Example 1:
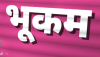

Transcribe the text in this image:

भूकम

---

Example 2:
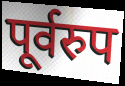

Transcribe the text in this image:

पूर्वरुप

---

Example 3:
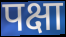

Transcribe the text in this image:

पक्षा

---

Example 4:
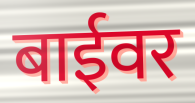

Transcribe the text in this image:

बाईवर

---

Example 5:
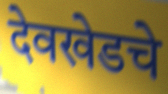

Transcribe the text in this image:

देवखेडचे